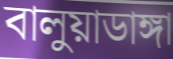
বালুয়াডাঙ্গা